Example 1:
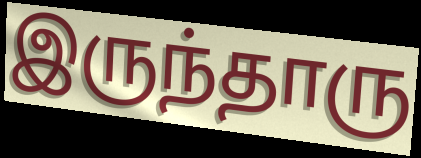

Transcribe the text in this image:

இருந்தாரு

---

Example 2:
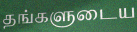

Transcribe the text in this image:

தங்களுடைய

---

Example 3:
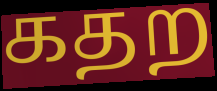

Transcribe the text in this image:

கதற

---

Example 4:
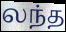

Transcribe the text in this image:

லந்த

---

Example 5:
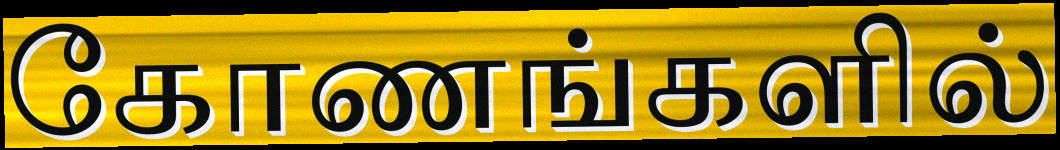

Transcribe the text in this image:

கோணங்களில்